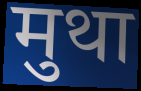
मुथा